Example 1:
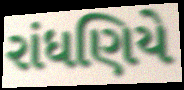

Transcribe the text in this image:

રાંધણિયે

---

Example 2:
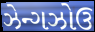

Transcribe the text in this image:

ઝેન્ગઝોઉ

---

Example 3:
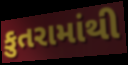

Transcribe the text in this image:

કુતરામાંથી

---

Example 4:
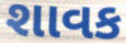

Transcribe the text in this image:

શાવક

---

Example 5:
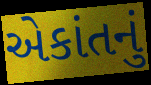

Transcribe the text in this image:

એકાંતનું